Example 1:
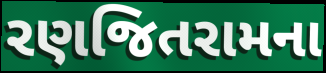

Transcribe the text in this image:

રણજિતરામના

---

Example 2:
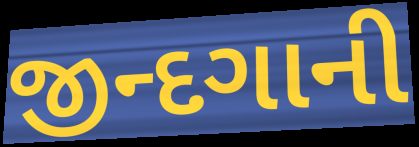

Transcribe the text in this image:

જીન્દગાની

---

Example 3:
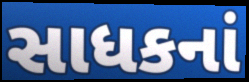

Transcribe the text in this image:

સાધકનાં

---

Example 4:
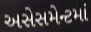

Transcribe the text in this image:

અસેસમેન્ટમાં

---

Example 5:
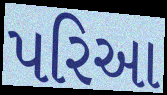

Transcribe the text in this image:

પરિઆ